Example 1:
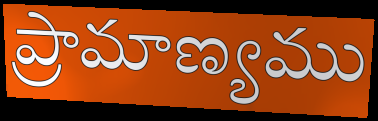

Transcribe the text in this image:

ప్రామాణ్యము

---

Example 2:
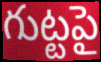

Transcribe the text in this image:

గుట్టపై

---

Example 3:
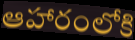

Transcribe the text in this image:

ఆహారంలోకి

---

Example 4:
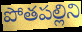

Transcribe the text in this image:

పోతపల్లిని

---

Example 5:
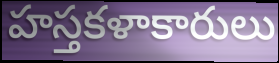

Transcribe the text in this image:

హస్తకళాకారులు